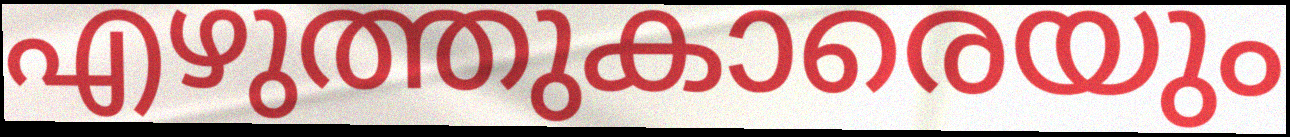
എഴുത്തുകാരെയും